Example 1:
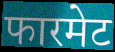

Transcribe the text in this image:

फारमेट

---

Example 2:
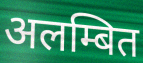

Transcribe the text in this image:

अलम्बित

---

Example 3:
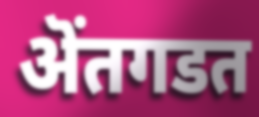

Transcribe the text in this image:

ऄंतगडत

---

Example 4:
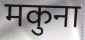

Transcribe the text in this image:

मकुना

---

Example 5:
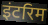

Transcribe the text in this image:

इंटरिम